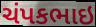
ચંપકભાઇ